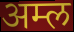
अम्ल